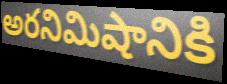
అరనిమిషానికి